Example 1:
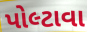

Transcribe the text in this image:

પોલ્ટાવા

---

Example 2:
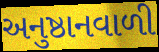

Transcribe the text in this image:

અનુષ્ઠાનવાળી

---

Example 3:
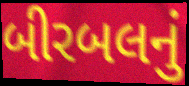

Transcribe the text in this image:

બીરબલનું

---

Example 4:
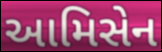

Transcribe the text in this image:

આમિસેન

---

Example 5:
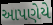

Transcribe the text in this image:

આપણેયે